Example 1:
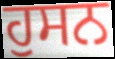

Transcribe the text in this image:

ਹੁਸਨ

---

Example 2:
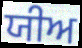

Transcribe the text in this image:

ਯੀਅ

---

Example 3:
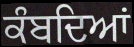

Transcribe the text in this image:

ਕੰਬਦਿਆਂ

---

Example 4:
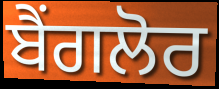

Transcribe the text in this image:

ਬੈਂਗਲੋਰ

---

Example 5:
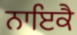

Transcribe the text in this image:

ਨਾਇਕੈ